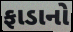
ફાડાનો